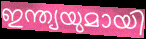
ഇന്ത്യയുമായി